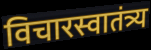
विचारस्वातंत्र्य